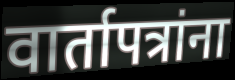
वार्तापत्रांना